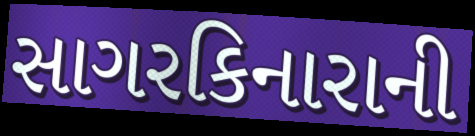
સાગરકિનારાની